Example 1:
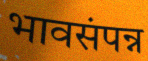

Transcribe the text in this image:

भावसंपन्न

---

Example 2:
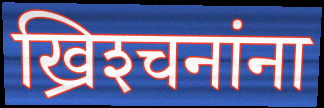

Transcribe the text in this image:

ख्रिश्‍चनांना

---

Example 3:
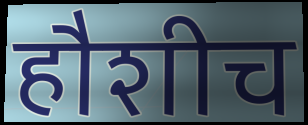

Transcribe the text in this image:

हौशीच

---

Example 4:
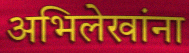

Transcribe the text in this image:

अभिलेखांना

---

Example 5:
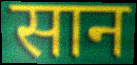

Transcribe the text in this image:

सान